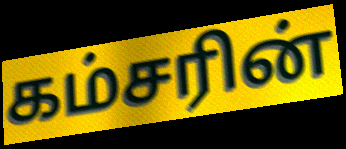
கம்சரின்